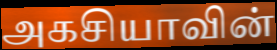
அகசியாவின்